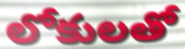
లోకులతో